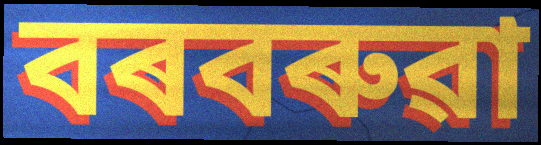
বৰবৰুৱা